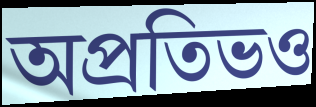
অপ্রতিভও